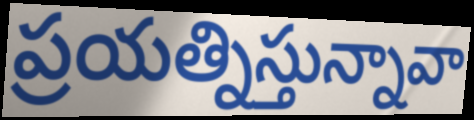
ప్రయత్నిస్తున్నావా